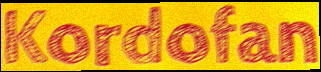
Kordofan